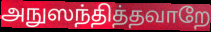
அநுஸந்தித்தவாறே